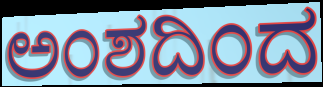
ಅಂಶದಿಂದ